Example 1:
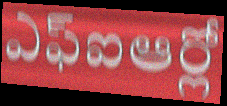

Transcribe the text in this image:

ఎఫ్ఐఆర్లో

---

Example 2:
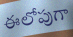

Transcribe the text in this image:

ఈలోపుగా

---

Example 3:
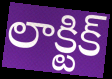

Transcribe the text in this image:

లాక్టిక్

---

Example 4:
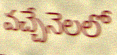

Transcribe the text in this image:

వచ్చేనెలలో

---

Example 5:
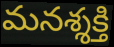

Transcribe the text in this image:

మనశ్శక్తి